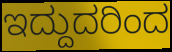
ಇದ್ದುದರಿಂದ